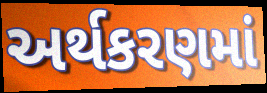
અર્થકરણમાં